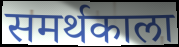
समर्थकाला